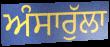
ਅੰਸਾਰੁੱਲਾ